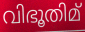
വിഭൂതിമ്